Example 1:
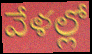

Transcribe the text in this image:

వేళల్లో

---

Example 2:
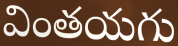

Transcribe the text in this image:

వింతయగు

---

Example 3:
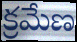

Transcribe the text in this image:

క్రమేణ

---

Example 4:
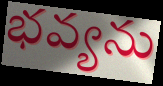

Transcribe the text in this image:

భవ్యను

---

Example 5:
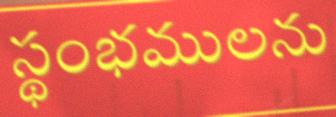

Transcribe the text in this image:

స్థంభములను